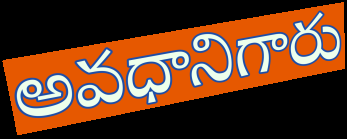
అవధానిగారు